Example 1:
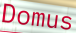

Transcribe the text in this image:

Domus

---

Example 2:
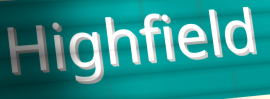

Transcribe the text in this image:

Highfield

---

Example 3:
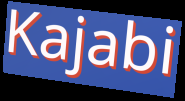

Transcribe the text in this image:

Kajabi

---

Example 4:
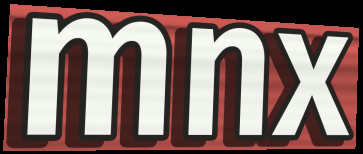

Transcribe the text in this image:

mnx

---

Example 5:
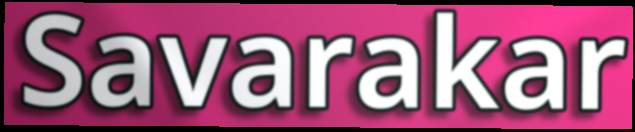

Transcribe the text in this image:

Savarakar